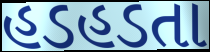
હડહડતા